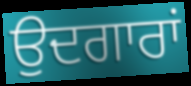
ਉਦਗਾਰਾਂ